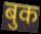
बुक